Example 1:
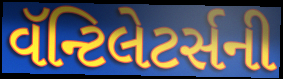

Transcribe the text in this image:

વૅન્ટિલેટર્સની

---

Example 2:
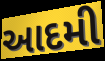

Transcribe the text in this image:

આદમી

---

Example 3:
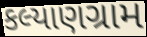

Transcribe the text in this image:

કલ્યાણગ્રામ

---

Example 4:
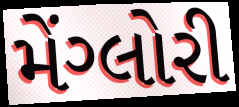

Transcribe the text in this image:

મેંગ્લોરી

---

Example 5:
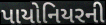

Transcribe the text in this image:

પાયોનિયરની